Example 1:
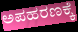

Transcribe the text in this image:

ಅಪಹರಣಕ್ಕೆ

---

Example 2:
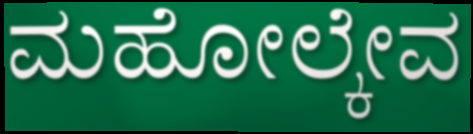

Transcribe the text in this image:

ಮಹೋಲ್ಕೇವ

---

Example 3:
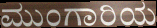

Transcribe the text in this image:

ಮುಂಗಾರಿಯ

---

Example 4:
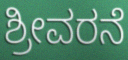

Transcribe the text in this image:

ಶ್ರೀವರನೆ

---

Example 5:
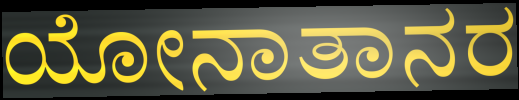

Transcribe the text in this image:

ಯೋನಾತಾನರ